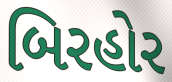
બિરહોર